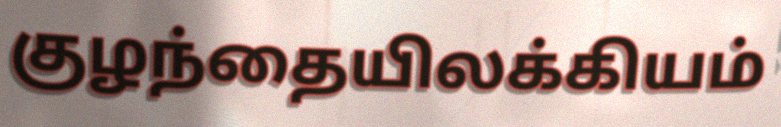
குழந்தையிலக்கியம்